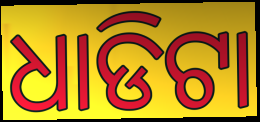
ଧାଡିଟା